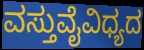
ವಸ್ತುವೈವಿಧ್ಯದ